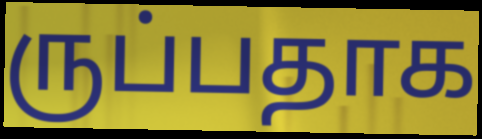
ருப்பதாக